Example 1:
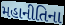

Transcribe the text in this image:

મહાનીતિના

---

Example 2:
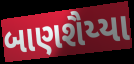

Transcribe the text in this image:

બાણશૈય્યા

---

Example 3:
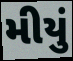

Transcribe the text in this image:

મીયું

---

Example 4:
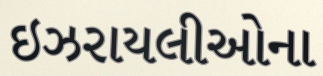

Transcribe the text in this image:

ઇઝરાયલીઓના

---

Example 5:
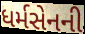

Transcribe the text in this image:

ધર્મસેનની